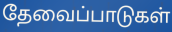
தேவைப்பாடுகள்